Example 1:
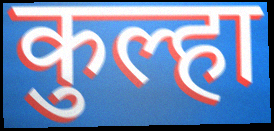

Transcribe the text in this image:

कुल्हा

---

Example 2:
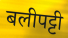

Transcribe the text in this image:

बलीपट्टी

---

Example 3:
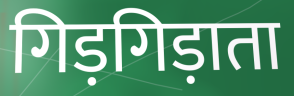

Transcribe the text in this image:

गिड़गिड़ाता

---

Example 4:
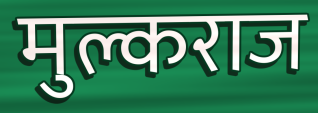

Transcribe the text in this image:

मुल्कराज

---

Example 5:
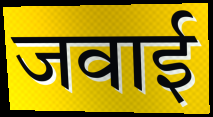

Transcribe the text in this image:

जवाई